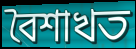
বৈশাখত